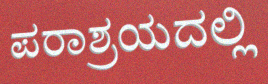
ಪರಾಶ್ರಯದಲ್ಲಿ